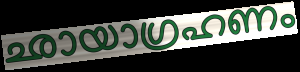
ഛായാഗ്രഹണം